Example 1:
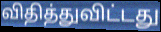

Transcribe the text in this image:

விதித்துவிட்டது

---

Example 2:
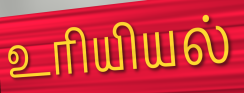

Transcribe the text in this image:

உரியியல்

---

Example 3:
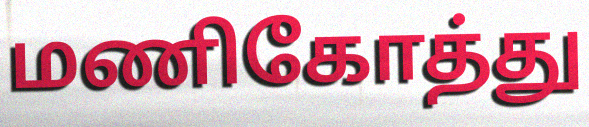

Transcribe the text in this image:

மணிகோத்து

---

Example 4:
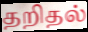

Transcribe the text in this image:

தறிதல்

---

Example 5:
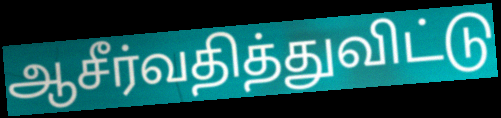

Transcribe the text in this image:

ஆசீர்வதித்துவிட்டு